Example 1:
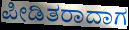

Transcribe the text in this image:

ಪೀಡಿತರಾದಾಗ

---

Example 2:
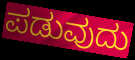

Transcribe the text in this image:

ಪಡುವುದು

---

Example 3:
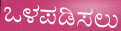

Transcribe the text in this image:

ಒಳಪಡಿಸಲು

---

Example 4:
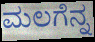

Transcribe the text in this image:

ಮಲಗೆನ್ನ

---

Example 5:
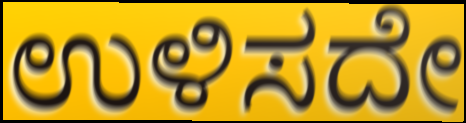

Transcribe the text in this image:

ಉಳಿಸದೇ